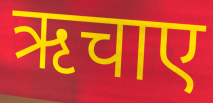
ऋचाए